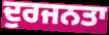
ਦੁਰਜਨਤਾ